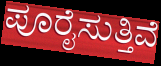
ಪೂರೈಸುತ್ತಿವೆ